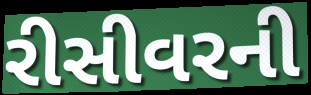
રીસીવરની